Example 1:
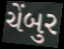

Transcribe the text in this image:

ચેંબુર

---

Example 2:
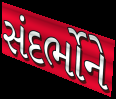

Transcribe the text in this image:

સંદર્ભોને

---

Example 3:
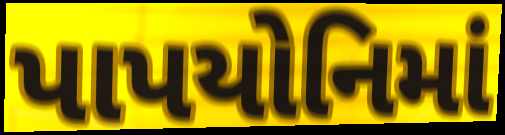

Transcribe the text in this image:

પાપયોનિમાં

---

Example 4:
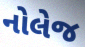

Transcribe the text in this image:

નોલેજ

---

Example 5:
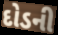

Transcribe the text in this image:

દોડની